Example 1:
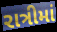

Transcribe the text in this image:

રાત્રીમાં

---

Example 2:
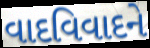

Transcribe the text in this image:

વાદવિવાદને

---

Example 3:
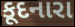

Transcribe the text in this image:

કૂદનારા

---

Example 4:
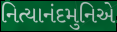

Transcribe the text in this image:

નિત્યાનંદમુનિએ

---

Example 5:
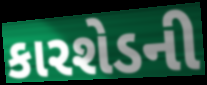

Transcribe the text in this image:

કારશેડની